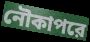
নৌকাপরে